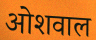
ओशवाल